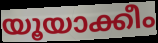
യൂയാക്കീം